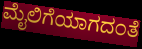
ಮೈಲಿಗೆಯಾಗದಂತೆ